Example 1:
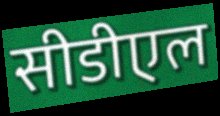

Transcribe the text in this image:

सीडीएल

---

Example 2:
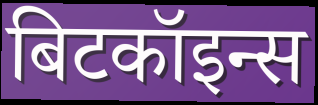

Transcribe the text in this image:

बिटकॉइन्स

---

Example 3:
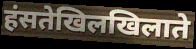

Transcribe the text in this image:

हंसतेखिलखिलाते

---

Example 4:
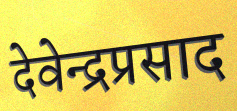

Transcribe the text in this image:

देवेन्द्रप्रसाद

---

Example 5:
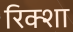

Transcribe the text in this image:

रिक्शा